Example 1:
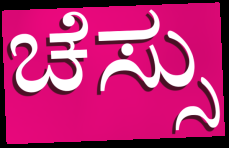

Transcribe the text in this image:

ಚೆಸ್ಸು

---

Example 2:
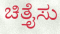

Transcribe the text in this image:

ಚಿತ್ತೈಸು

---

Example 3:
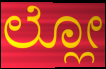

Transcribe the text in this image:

ಲ್ಲೋ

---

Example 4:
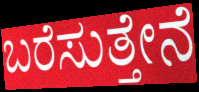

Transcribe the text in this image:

ಬರೆಸುತ್ತೇನೆ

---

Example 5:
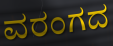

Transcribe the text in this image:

ವರಂಗದ